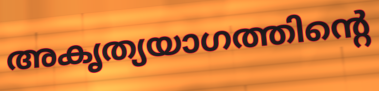
അകൃത്യയാഗത്തിന്റെ